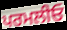
ਪਰਮਲੀਓ